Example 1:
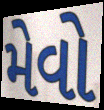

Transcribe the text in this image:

મેવો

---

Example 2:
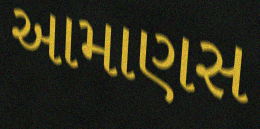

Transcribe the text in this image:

આમાણસ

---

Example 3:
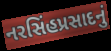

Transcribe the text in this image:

નરસિંહપ્રસાદનું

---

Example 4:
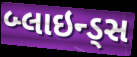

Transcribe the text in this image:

બ્લાઇન્ડ્સ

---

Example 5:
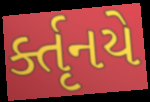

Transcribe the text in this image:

ર્ક્તૃનયે